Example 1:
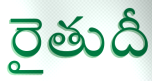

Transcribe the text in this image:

రైతుదీ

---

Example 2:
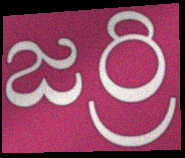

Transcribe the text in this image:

జర్రి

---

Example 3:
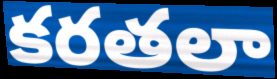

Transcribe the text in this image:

కరతలా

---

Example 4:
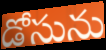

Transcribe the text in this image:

డోసును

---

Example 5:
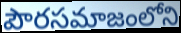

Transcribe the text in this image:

పౌరసమాజంలోని